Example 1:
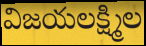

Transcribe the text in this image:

విజయలక్ష్మిల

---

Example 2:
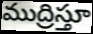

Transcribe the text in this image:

ముద్రిస్తూ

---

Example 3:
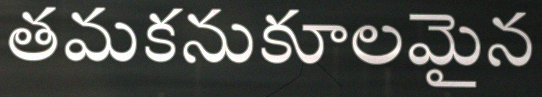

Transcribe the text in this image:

తమకనుకూలమైన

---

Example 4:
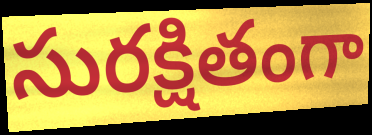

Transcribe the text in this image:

సురక్షితంగా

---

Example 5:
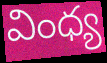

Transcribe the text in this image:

వింధ్య